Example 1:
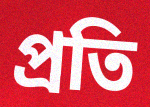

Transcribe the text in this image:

প্ৰতি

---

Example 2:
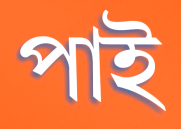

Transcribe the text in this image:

পাই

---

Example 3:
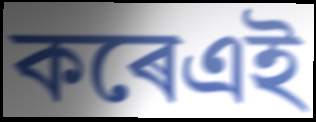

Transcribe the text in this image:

কৰেএই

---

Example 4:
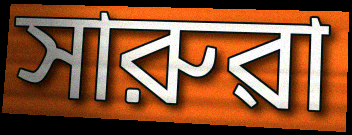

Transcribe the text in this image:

সাৰুৱা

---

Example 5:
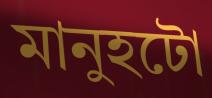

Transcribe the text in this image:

মানুহটো